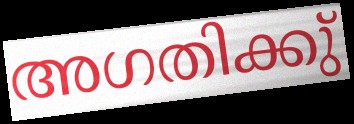
അഗതിക്കു്